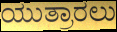
ಯುತ್ರಾರಲು